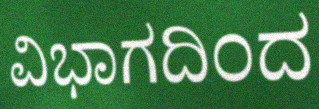
ವಿಭಾಗದಿಂದ